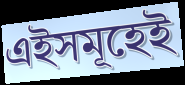
এইসমূহেই